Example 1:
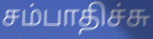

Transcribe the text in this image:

சம்பாதிச்சு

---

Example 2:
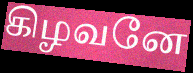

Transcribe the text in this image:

கிழவனே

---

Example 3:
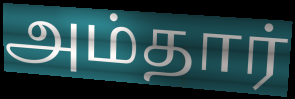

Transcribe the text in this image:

அம்தார்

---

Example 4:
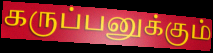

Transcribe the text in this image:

கருப்பனுக்கும்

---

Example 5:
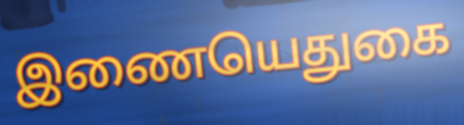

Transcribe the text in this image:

இணையெதுகை